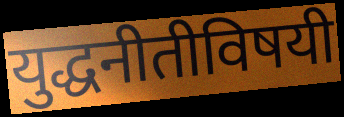
युद्धनीतीविषयी